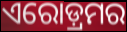
ଏରୋଡ଼୍ରମର